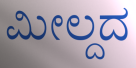
ಮೀಲ್ದದ